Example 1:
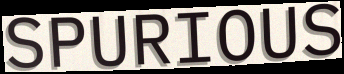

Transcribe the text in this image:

SPURIOUS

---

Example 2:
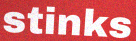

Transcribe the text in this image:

stinks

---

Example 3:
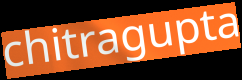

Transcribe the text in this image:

chitragupta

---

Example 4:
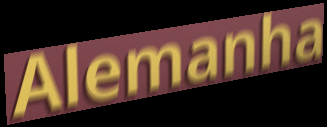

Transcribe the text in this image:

Alemanha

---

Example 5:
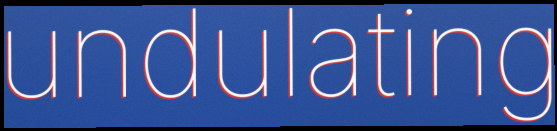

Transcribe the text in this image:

undulating